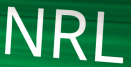
NRL